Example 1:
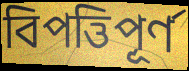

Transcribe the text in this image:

বিপত্তিপূর্ণ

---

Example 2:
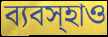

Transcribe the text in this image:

ব্যবস্হাও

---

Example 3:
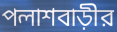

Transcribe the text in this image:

পলাশবাড়ীর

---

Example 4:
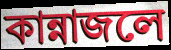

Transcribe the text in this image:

কান্নাজলে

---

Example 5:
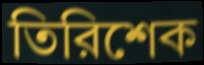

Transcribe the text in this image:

তিরিশেক